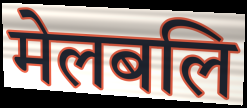
मेलबलि